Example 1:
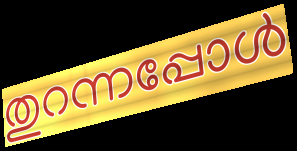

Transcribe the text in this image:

തുറന്നപ്പോൾ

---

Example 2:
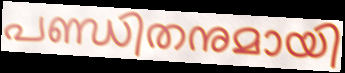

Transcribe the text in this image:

പണ്ഡിതനുമായി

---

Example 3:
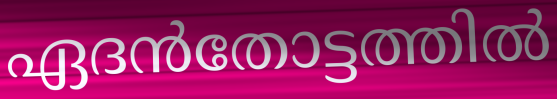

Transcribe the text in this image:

ഏദൻതോട്ടത്തിൽ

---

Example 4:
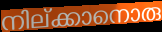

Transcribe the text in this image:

നില്ക്കാനൊരു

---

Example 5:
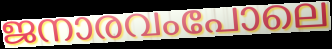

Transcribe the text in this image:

ജനാരവംപോലെ